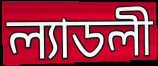
ল্যাডলী